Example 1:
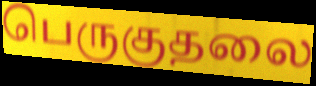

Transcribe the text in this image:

பெருகுதலை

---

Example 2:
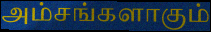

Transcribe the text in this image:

அம்சங்களாகும்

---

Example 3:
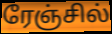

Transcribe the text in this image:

ரேஞ்சில்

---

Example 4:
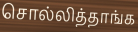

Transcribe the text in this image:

சொல்லித்தாங்க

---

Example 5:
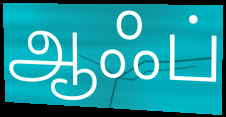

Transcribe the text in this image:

ஆஃப்